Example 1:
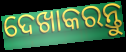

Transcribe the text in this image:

ଦେଖାକରନ୍ତୁ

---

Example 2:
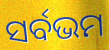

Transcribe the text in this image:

ସର୍ବଭମ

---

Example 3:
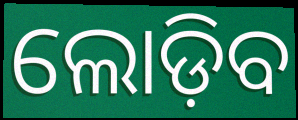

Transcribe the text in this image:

ଲୋଡ଼ିବ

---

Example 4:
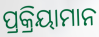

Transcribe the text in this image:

ପ୍ରକ୍ରିୟାମାନ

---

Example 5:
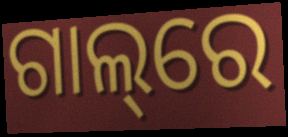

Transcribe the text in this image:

ଗାଲ୍‌ରେ